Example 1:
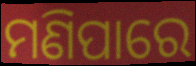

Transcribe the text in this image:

ମଣିପାରେ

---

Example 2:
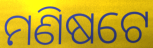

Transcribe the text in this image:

ମଣିଷଟେ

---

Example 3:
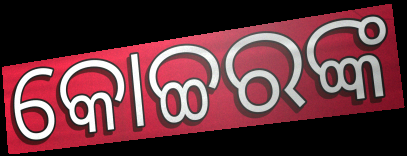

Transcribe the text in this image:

କୋଚ୍ଚରଙ୍କ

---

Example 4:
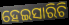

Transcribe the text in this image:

ହେଇସାରିଚି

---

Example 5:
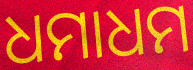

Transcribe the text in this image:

ଧମାଧମ